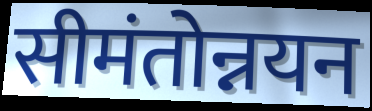
सीमंतोन्नयन